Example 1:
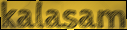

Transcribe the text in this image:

kalasam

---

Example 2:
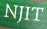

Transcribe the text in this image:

NJIT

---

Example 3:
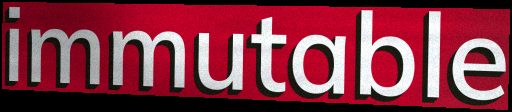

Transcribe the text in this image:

immutable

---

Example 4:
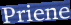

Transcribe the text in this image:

Priene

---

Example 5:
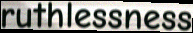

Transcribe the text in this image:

ruthlessness